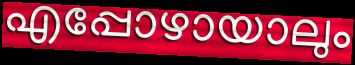
എപ്പോഴായാലും